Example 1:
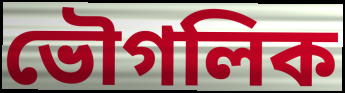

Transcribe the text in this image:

ভৌগলিক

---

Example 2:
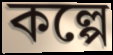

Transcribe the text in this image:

কল্পে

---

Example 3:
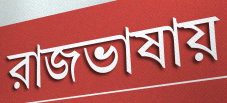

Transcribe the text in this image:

রাজভাষায়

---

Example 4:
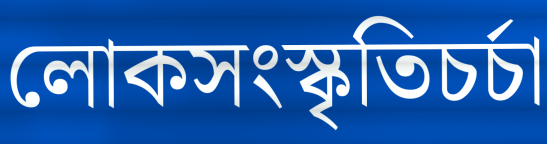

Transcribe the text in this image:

লোকসংস্কৃতিচর্চা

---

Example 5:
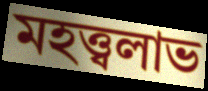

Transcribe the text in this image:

মহত্ত্বলাভ